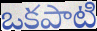
ఒకపాటి